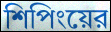
শিপিংয়ের